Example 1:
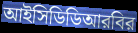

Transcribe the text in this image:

আইসিডিডিআরবির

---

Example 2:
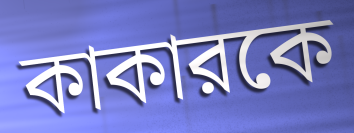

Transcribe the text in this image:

কাকারকে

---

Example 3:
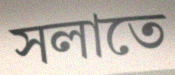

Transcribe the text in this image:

সলাতে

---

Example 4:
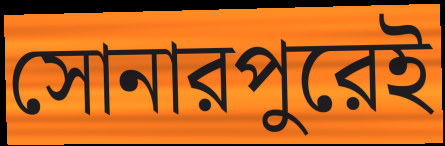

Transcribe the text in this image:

সোনারপুরেই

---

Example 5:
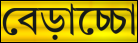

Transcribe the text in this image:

বেড়াচ্চো